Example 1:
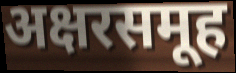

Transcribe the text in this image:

अक्षरसमूह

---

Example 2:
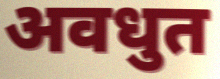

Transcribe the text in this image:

अवधुत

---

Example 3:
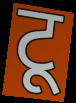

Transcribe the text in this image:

टू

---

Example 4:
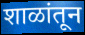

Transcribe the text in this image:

शाळांतून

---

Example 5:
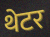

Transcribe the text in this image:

थेटर